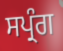
ਸਪ੍ਰੰਗ